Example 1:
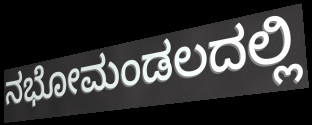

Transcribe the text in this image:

ನಭೋಮಂಡಲದಲ್ಲಿ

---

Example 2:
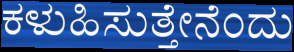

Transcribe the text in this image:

ಕಳುಹಿಸುತ್ತೇನೆಂದು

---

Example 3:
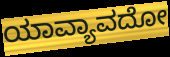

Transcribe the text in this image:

ಯಾವ್ಯಾವದೋ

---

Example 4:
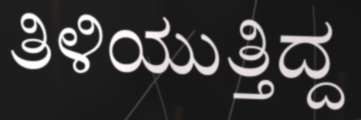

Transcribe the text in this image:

ತಿಳಿಯುತ್ತಿದ್ದ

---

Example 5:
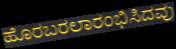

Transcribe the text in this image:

ಹೊರಬರಲಾರಂಭಿಸಿದವು